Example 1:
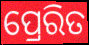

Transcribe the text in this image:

ପ୍ରେରିତ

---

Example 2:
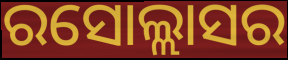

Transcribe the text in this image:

ରସୋଲ୍ଲାସର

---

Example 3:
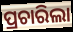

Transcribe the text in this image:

ପ୍ରଚାରିଲା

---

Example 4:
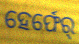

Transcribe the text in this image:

ହେର୍ଫେର୍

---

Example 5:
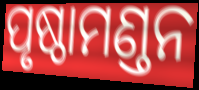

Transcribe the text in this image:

ପୃଷ୍ଠାମଣ୍ଡନ